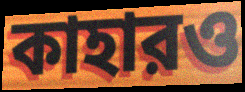
কাহারও